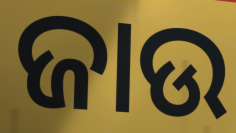
ଜାଉ